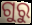
ଗୁରୁ